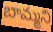
బామ్మని